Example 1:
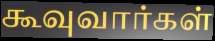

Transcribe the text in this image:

கூவுவார்கள்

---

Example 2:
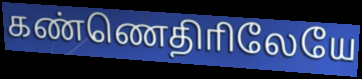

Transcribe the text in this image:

கண்ணெதிரிலேயே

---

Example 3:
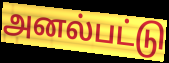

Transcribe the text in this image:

அனல்பட்டு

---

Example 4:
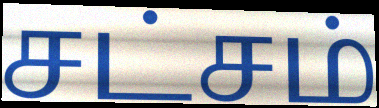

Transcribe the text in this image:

சட்சம்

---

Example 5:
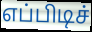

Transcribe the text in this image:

எப்பிடிச்